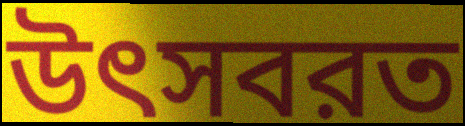
উৎসবরত